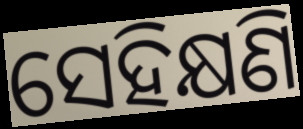
ସେହିକ୍ଷଣି